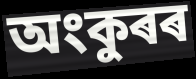
অংকুৰৰ